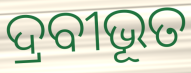
ଦ୍ରବୀଭୂତ